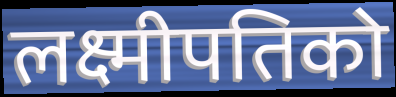
लक्ष्मीपतिको